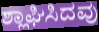
ಶ್ಲಾಘಿಸಿದವು